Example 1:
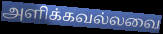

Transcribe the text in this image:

அளிக்கவல்லவை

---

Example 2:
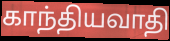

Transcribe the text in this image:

காந்தியவாதி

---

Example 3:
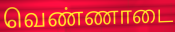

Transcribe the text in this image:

வெண்ணாடை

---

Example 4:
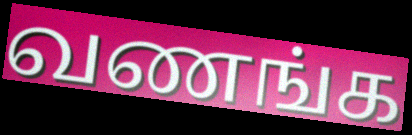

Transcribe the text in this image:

வணங்க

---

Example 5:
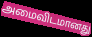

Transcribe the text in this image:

அமைவிடமானது